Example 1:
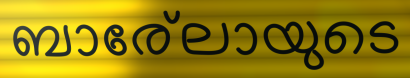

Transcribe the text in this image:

ബാര്ലോയുടെ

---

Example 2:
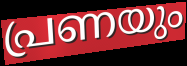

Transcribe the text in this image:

പ്രണയും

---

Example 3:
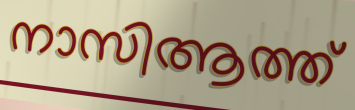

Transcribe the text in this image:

നാസിആത്ത്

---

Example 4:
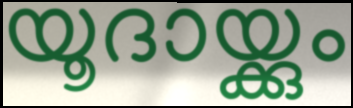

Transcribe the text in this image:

യൂദായ്ക്കും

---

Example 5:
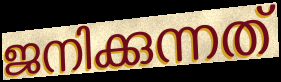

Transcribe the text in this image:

ജനിക്കുന്നത്